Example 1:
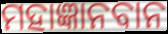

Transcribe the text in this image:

ମହାଜ୍ଞାନବାନ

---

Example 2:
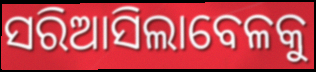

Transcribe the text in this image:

ସରିଆସିଲାବେଳକୁ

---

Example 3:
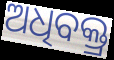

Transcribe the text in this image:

ଅଧିବକ୍ତ୍ର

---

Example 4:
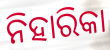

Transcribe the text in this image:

ନିହାରିକା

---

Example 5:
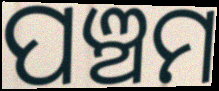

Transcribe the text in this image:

ପଞ୍ଚମ